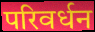
परिवर्धन